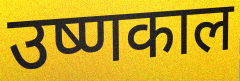
उष्णकाल